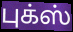
புக்ஸ்